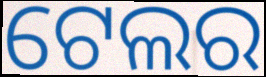
ଟେଲର